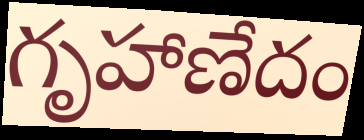
గృహాణేదం